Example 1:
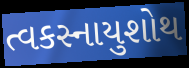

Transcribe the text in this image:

ત્વકસ્નાયુશોથ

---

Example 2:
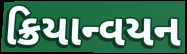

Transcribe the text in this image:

ક્રિયાન્વયન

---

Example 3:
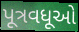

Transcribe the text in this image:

પૂત્રવધૂઓ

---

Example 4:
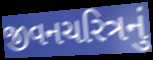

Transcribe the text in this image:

જીવનચરિત્રનું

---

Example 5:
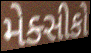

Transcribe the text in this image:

મેક્સીકો